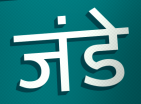
जंडे